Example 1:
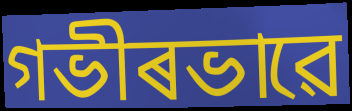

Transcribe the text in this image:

গভীৰভাৱে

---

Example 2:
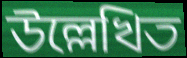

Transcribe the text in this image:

উল্লেখিত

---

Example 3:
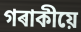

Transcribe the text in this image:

গৰাকীয়ে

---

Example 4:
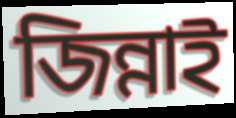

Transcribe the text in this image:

জিন্নাই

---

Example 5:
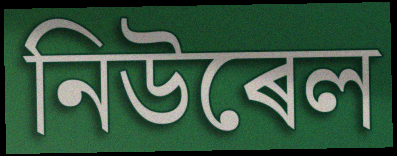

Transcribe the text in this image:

নিউৰেল